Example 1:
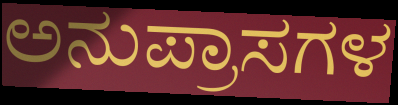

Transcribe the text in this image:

ಅನುಪ್ರಾಸಗಳ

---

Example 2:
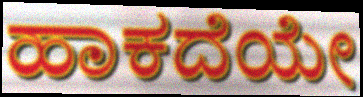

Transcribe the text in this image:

ಹಾಕದೆಯೇ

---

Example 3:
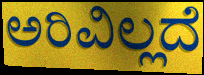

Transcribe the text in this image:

ಅರಿವಿಲ್ಲದೆ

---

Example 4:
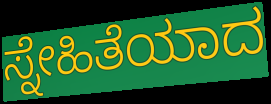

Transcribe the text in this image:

ಸ್ನೇಹಿತೆಯಾದ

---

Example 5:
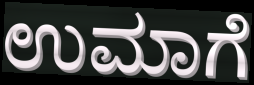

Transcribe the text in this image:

ಉಮಾಗೆ